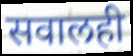
सवालही